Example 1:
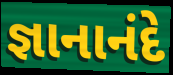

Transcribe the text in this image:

જ્ઞાનાનંદે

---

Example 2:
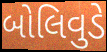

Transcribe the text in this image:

બોલિવુડે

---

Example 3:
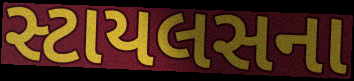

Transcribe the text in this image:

સ્ટાયલસના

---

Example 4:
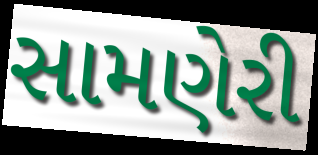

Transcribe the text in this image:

સામણેરી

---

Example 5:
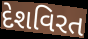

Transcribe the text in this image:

દેશવિરત